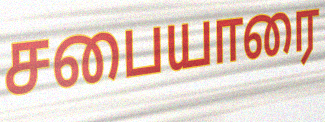
சபையாரை